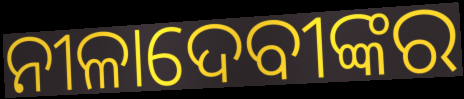
ନୀଳାଦେବୀଙ୍କର